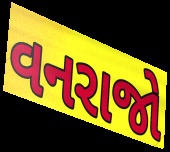
વનરાજો